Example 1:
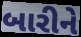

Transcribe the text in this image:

બારીને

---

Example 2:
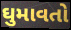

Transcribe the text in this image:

ઘુમાવતો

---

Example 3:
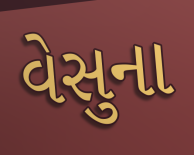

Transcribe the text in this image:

વેસુના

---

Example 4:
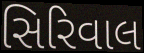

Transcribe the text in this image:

સિરિવાલ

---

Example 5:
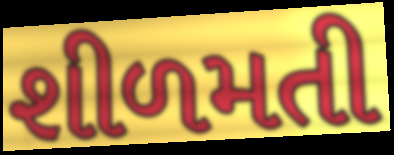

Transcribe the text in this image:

શીળમતી